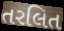
તરલિત